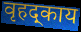
वृहद्काय